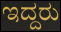
ಇದ್ದರು